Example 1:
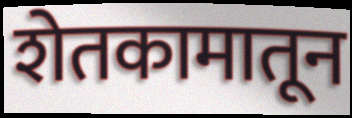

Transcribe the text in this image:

शेतकामातून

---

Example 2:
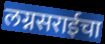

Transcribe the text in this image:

लग्नसराईचा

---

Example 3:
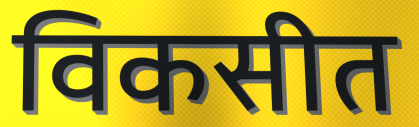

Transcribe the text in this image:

विकसीत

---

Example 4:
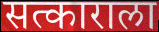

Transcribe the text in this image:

सत्काराला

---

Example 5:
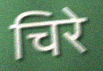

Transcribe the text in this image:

चिरे